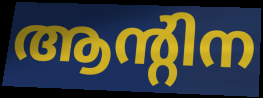
ആന്റിന